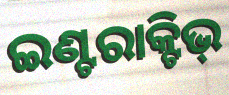
ଇଣ୍ଟରାକ୍ଟିଭ୍